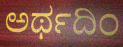
ಅರ್ಥದಿಂ